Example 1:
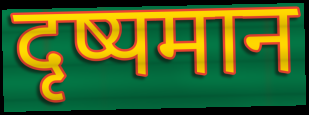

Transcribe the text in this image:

दृष्यमान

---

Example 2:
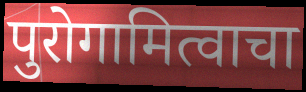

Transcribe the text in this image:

पुरोगामित्वाचा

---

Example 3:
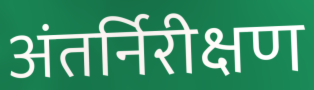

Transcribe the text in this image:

अंतर्निरीक्षण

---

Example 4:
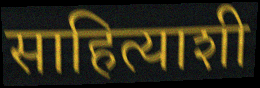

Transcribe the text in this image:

साहित्याशी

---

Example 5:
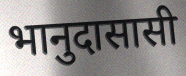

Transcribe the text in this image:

भानुदासासी